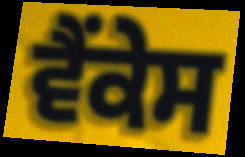
ਵੈਂਕੇਸ